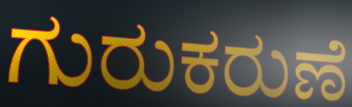
ಗುರುಕರುಣೆ